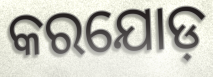
କରଯୋଡ଼